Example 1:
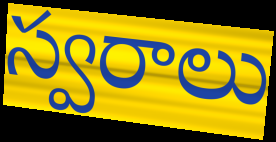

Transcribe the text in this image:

స్వరాలు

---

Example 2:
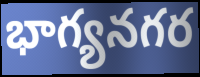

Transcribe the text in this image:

భాగ్యనగర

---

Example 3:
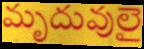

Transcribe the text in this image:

మృదువులై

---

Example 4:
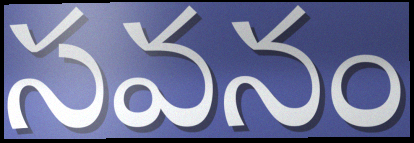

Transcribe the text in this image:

సవనం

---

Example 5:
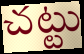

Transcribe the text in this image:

చట్టు